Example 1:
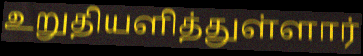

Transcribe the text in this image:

உறுதியளித்துள்ளார்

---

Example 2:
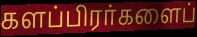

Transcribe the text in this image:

களப்பிரர்களைப்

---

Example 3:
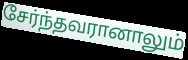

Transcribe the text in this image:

சேர்ந்தவரானாலும்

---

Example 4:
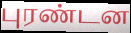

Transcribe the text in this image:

புரண்டன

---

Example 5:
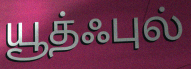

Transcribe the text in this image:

யூத்ஃபுல்